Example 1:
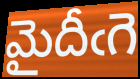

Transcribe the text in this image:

మైదీఁగె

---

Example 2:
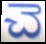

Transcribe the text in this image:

చె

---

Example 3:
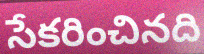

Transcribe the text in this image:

సేకరించినది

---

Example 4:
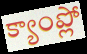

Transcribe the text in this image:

క్యాంప్లో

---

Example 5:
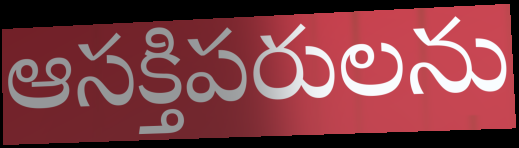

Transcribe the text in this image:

ఆసక్తిపరులను